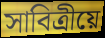
সাবিত্ৰীয়ে